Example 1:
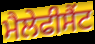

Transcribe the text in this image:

ਮੈਲੇਫੀਸੈਂਟ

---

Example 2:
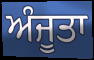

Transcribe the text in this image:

ਅੰਜੂਤਾ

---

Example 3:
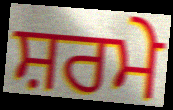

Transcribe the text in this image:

ਸ਼ਰਮੇ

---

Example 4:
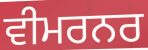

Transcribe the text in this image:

ਵੀਮਰਨਰ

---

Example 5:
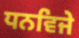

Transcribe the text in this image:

ਧਨਵਿਜੇ